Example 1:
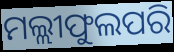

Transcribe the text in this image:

ମଲ୍ଲୀଫୁଲପରି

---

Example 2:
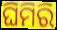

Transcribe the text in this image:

ଘିମିରି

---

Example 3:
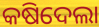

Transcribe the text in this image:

କଷିଦେଲା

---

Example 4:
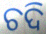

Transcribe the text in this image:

ଚଦି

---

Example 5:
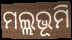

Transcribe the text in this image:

ମଲ୍ଲଭୂମି